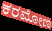
ಕರಮೋಣ